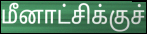
மீனாட்சிக்குச்